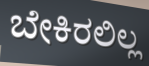
ಬೇಕಿರಲಿಲ್ಲ